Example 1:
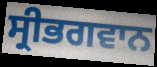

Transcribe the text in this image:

ਸ੍ਰੀਭਗਵਾਨ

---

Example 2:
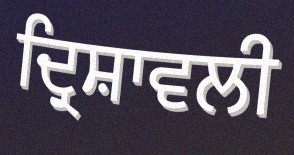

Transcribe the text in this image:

ਦ੍ਰਿਸ਼ਾਵਲੀ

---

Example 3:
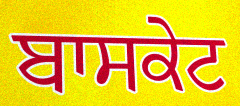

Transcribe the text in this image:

ਬਾਸਕੇਟ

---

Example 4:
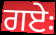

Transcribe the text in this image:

ਗਏਃ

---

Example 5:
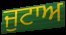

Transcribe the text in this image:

ਜੁਟਾਅ